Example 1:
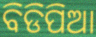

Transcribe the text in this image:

ବିଡିପିଆ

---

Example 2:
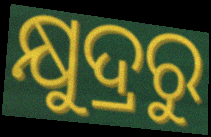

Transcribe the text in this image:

କ୍ଷୁଦ୍ରରୁ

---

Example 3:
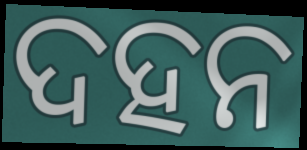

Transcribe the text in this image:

ଦହନ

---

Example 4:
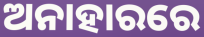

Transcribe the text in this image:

ଅନାହାରରେ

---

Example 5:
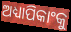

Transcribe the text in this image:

ଅଧ୍ୟାପିକାଂକୁ